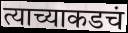
त्याच्याकडचं